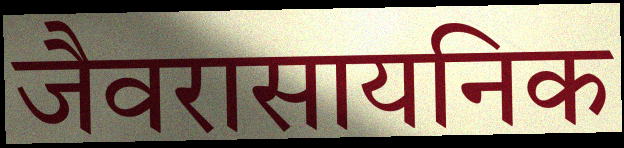
जैवरासायनिक